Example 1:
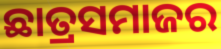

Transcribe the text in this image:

ଛାତ୍ରସମାଜର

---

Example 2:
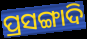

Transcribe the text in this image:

ପ୍ରସଙ୍ଗାଦି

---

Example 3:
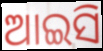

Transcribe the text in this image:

ଆଇସି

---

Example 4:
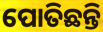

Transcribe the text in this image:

ପୋତିଛନ୍ତି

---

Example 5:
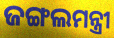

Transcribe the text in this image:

ଜଙ୍ଗଲମନ୍ତ୍ରୀ